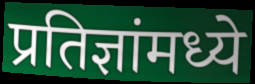
प्रतिज्ञांमध्ये